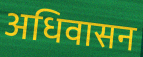
अधिवासन